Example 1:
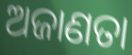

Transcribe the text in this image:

ଅଜାଣତା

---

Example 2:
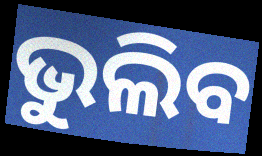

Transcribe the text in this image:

ଭୁଲିବ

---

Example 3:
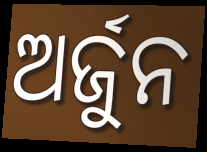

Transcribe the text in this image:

ଅର୍ଜୁନ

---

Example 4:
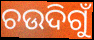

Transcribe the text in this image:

ଚଉଦିଗୁଁ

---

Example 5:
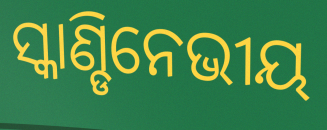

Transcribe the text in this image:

ସ୍କାଣ୍ଡିନେଭୀୟ